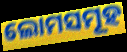
ଲୋମସମୂହ